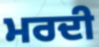
ਮਰਦੀ